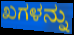
ಖಗಳನ್ನು